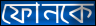
ফোনকে